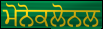
ਮੋਨੋਕਲੋਨਲ